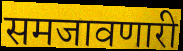
समजावणारी